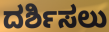
ದರ್ಶಿಸಲು